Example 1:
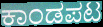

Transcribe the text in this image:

ಕಾಂಡಪಟ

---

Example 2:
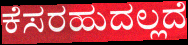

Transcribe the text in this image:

ಕೆಸರಹುದಲ್ಲದೆ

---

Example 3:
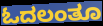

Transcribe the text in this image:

ಓದಲಂತೂ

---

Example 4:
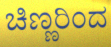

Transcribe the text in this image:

ಚಿಣ್ಣರಿಂದ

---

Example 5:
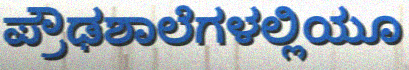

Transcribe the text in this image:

ಪ್ರೌಢಶಾಲೆಗಳಲ್ಲಿಯೂ